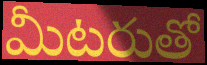
మీటరుతో